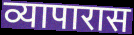
व्यापारास